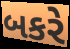
બકરે